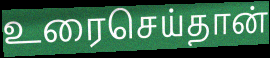
உரைசெய்தான்